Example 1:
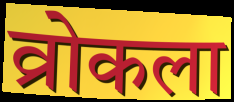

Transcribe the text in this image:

व्रोकला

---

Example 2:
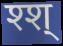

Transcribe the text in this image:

श्श्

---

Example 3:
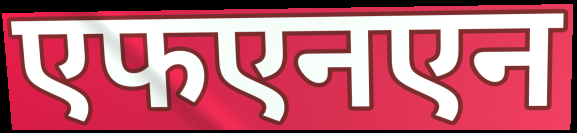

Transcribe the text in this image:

एफएनएन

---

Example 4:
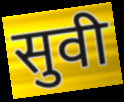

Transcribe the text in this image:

सुवी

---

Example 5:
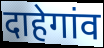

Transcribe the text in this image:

दाहेगांव